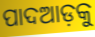
ପାଦଆଡ଼କୁ